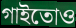
গাইতোও